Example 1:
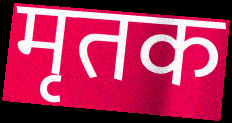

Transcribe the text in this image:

मृतक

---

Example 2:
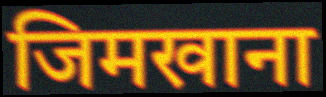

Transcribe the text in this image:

जिमखाना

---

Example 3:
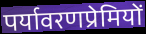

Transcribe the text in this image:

पर्यावरणप्रेमियों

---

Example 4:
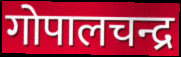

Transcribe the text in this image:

गोपालचन्द्र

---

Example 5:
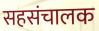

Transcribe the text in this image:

सहसंचालक